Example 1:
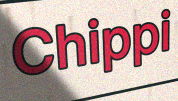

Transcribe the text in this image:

Chippi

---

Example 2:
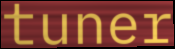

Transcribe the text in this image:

tuner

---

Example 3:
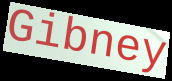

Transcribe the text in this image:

Gibney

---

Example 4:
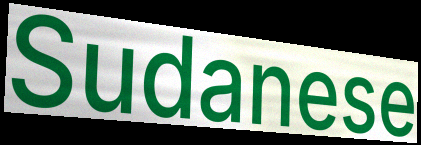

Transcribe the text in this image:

Sudanese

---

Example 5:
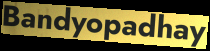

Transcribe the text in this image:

Bandyopadhay